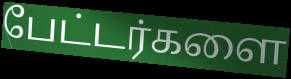
பேட்டர்களை